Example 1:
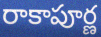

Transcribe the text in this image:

రాకాపూర్ణ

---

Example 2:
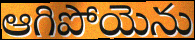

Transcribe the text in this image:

ఆగిపోయెను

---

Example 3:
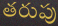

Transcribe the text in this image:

తరుపు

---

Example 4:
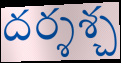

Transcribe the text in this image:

దర్శశ్చ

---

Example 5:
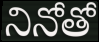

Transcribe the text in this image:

నినోతో